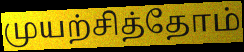
முயற்சித்தோம்